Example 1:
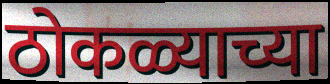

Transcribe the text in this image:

ठोकळ्याच्या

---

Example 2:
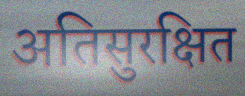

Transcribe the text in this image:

अतिसुरक्षित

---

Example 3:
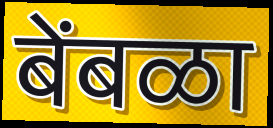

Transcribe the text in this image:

बेंबळा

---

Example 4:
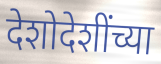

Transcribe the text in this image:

देशोदेशींच्या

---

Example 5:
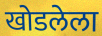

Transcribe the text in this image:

खोडलेला